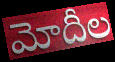
మోదీల